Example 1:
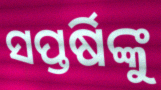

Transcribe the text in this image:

ସପ୍ତର୍ଷିଙ୍କୁ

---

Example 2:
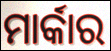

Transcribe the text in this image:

ମାର୍କାର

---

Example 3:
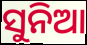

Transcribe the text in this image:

ସୁନିଆ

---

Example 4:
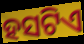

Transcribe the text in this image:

ହସଟିଏ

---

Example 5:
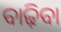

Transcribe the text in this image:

ବାଢ଼ିବା